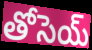
తోసెయ్